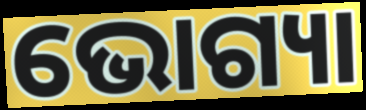
ଭୋଗ୍ୟା